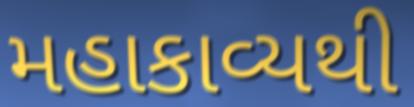
મહાકાવ્યથી